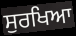
ਸੁਰਖਿਆ